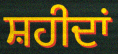
ਸ਼ਹੀਦਾਂ